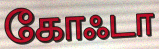
கோஃடா